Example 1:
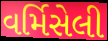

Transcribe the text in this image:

વર્મિસેલી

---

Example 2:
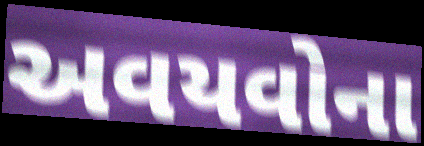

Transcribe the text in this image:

અવયવોના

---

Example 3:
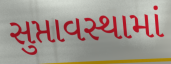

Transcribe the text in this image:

સુપ્તાવસ્થામાં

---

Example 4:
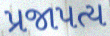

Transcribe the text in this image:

પ્રજાપત્ય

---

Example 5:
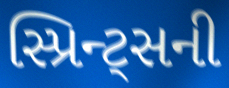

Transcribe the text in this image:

સ્પ્રિન્ટ્સની